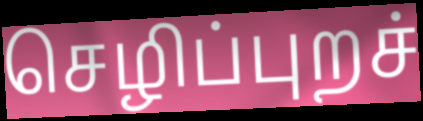
செழிப்புறச்